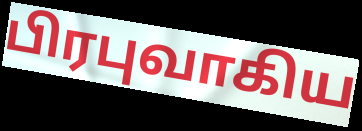
பிரபுவாகிய